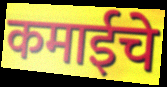
कमाईचे